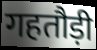
गहतौड़ी